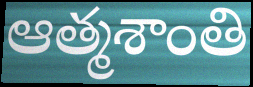
ఆత్మశాంతి